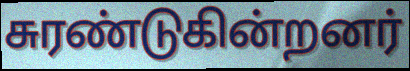
சுரண்டுகின்றனர்